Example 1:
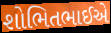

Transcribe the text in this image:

શોભિતભાઈએ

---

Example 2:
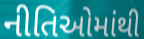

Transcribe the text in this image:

નીતિઓમાંથી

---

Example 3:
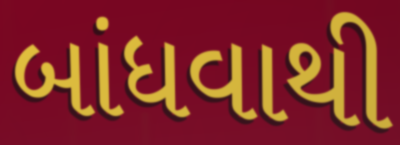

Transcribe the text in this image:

બાંધવાથી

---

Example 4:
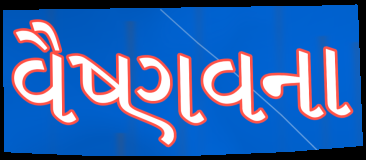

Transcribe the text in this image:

વૈષ્ણવના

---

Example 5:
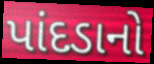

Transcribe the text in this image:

પાંદડાનો